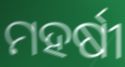
ମହର୍ଷୀ